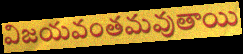
విజయవంతమవుతాయి